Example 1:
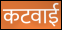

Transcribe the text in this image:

कटवाई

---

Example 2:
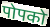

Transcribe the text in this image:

पोपको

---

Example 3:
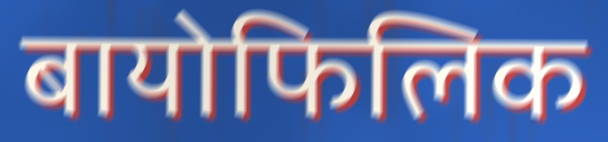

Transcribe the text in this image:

बायोफिलिक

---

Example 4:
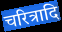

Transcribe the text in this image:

चरित्रादि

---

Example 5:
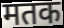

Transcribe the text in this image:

मतक